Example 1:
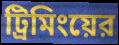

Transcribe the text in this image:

ট্রিমিংয়ের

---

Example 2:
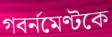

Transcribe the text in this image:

গবর্নমেণ্টকে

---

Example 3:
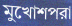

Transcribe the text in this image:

মুখোশপরা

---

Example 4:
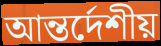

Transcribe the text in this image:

আন্তর্দেশীয়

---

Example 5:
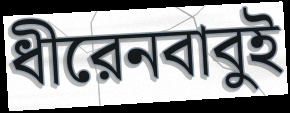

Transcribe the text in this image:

ধীরেনবাবুই